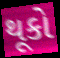
થૂકો